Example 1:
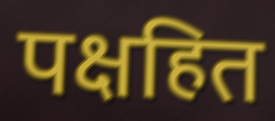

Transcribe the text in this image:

पक्षहित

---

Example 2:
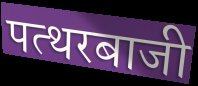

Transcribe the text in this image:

पत्थरबाजी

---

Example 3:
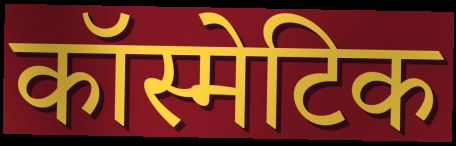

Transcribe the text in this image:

कॉस्मेटिक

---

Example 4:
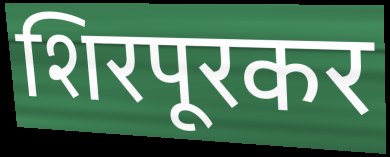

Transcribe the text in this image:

शिरपूरकर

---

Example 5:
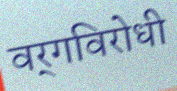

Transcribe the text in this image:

वर्गविरोधी